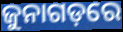
ଜୁନାଗଡ଼ରେ